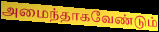
அமைந்தாகவேண்டும்